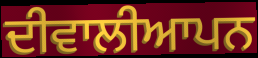
ਦੀਵਾਲੀਆਪਨ